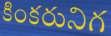
కింకరునిగ